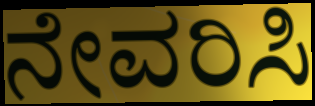
ನೇವರಿಸಿ